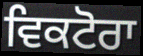
ਵਿਕਟੋਰਾ